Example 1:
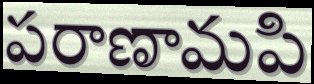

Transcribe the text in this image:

పరాణామపి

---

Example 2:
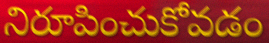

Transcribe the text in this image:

నిరూపించుకోవడం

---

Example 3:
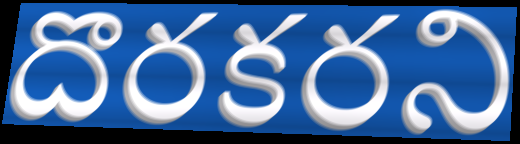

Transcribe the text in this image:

దొరకరని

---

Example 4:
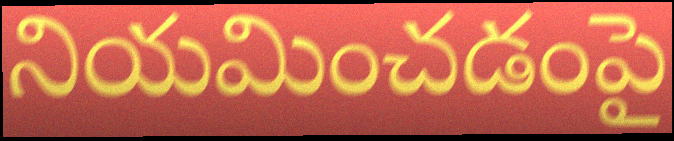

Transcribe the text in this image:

నియమించడంపై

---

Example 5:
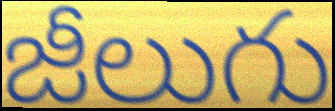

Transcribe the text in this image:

జీలుగు